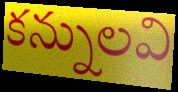
కన్నులవి